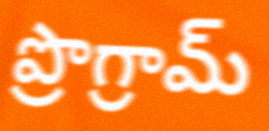
ప్రొగ్రామ్